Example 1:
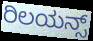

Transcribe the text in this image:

ರಿಲಯನ್ಸ್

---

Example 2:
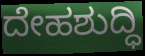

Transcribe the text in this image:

ದೇಹಶುದ್ಧಿ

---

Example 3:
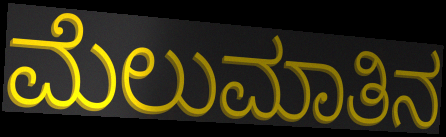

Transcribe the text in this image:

ಮೆಲುಮಾತಿನ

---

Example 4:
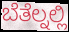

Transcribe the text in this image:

ಬೆತೆಲ್ನಲ್ಲಿ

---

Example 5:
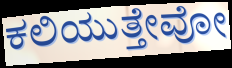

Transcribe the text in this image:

ಕಲಿಯುತ್ತೇವೋ